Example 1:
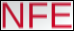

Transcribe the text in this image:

NFE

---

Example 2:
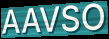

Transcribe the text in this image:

AAVSO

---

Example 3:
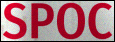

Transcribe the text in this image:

SPOC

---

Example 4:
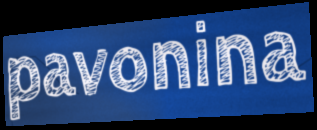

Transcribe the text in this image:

pavonina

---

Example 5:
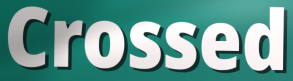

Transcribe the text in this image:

Crossed